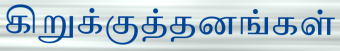
கிறுக்குத்தனங்கள்